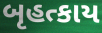
બૃહત્કાય